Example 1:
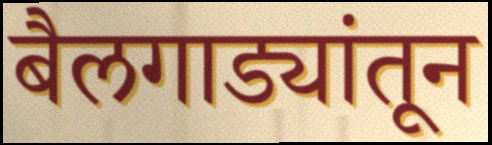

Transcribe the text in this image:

बैलगाड्यांतून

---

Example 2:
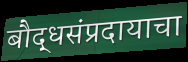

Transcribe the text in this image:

बौद्धसंप्रदायाचा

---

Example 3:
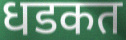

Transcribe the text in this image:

धडकत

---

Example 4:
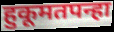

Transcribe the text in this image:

हुकूमतपन्हा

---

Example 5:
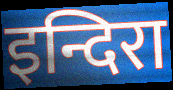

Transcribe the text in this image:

इन्दिरा